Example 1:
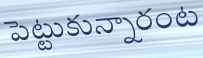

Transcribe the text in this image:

పెట్టుకున్నారంట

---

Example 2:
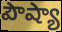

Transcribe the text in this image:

పౌష్యా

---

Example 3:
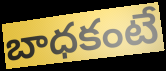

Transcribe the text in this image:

బాధకంటే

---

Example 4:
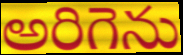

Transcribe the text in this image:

అరిగెను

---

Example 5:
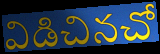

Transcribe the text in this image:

విడిచినచో